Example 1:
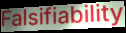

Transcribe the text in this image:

Falsifiability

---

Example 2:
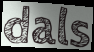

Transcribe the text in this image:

dals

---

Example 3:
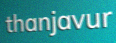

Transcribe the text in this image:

thanjavur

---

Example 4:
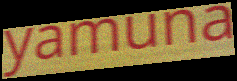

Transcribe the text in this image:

yamuna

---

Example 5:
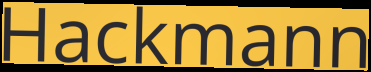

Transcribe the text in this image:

Hackmann